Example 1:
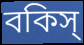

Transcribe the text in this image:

বকিস্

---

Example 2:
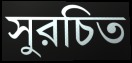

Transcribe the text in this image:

সুরচিত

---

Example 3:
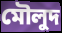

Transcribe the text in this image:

মৌলুদ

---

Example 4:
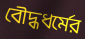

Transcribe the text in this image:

বৌদ্ধধর্মের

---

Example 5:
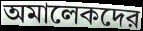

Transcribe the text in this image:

অমালেকদের